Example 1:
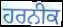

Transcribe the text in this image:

ਹਰਨੀਕ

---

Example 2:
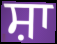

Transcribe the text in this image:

ਸ਼ਾ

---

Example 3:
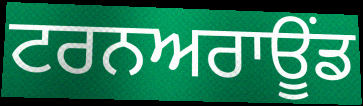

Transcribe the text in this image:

ਟਰਨਅਰਾਊਂਡ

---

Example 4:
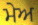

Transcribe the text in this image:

ਮੇਅ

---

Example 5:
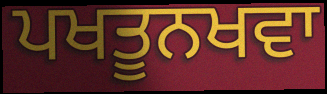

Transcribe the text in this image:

ਪਖਤੂਨਖਵਾ